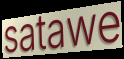
satawe